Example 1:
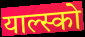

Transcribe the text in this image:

याल्स्को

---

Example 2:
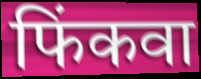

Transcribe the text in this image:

फिंकवा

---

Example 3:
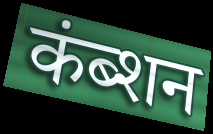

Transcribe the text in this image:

कंब्शन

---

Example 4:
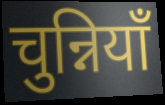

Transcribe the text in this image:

चुन्नियाँ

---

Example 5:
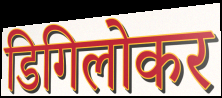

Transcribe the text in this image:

डिगिलोकर